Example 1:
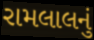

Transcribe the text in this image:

રામલાલનું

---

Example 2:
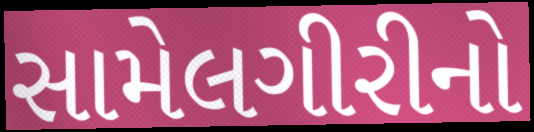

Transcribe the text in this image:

સામેલગીરીનો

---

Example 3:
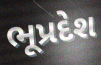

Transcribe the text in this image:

ભૂપ્રદેશ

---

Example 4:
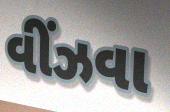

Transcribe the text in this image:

વીંઝવા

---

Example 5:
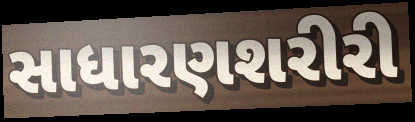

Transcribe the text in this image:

સાધારણશરીરી